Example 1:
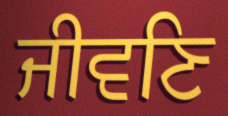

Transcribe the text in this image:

ਜੀਵਣਿ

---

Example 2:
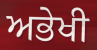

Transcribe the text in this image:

ਅਭੇਖੀ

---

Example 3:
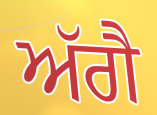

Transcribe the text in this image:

ਅੱਗੈ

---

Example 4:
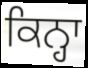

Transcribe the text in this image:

ਕਿਨ੍ਹਾ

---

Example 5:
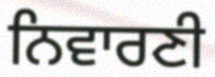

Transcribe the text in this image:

ਨਿਵਾਰਣੀ